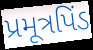
પ્રમૂત્રપિંડ